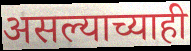
असल्याच्याही